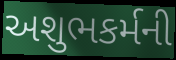
અશુભકર્મની